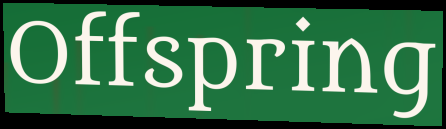
Offspring